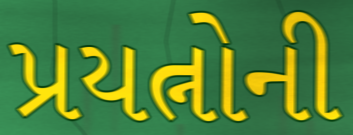
પ્રયત્નોની